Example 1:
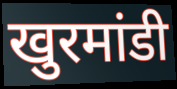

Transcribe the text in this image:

खुरमांडी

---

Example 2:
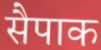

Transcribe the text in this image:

सैपाक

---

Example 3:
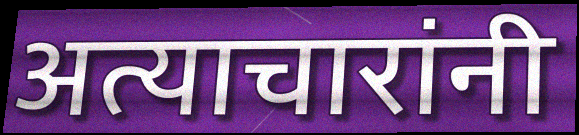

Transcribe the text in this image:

अत्याचारांनी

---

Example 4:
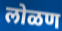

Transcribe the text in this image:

लोळण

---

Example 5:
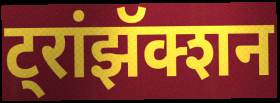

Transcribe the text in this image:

ट्रांझॅक्शन